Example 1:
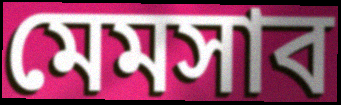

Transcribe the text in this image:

মেমসাব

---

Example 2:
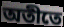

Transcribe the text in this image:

অতীতে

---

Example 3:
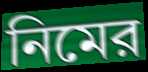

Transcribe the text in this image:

নিমের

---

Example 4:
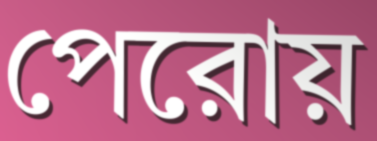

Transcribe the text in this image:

পেরোয়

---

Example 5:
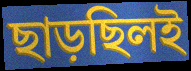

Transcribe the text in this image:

ছাড়ছিলই